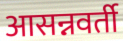
आसन्नवर्ती